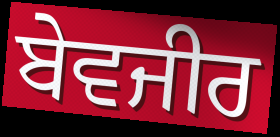
ਬੇਵਜੀਰ